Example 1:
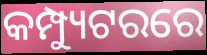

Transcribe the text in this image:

କମ୍ପ୍ୟୁଟରରେ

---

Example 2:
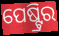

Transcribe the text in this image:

ପେଷ୍ଟ୍ରିର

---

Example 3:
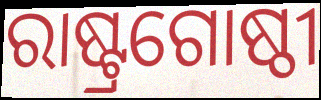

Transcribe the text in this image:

ରାଷ୍ଟ୍ରଗୋଷ୍ଠୀ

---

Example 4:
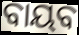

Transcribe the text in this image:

ବାୟବ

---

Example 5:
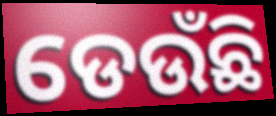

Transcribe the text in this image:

ଡେଉଁଛି